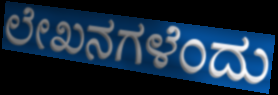
ಲೇಖನಗಳೆಂದು